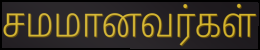
சமமானவர்கள்